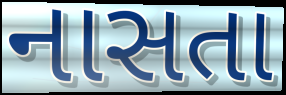
નાસતા